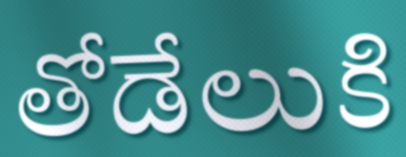
తోడేలుకి